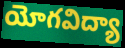
యోగవిద్యా